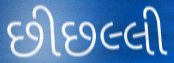
છીછલ્લી